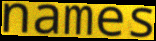
names